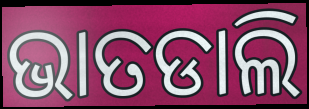
ଭାତଡାଲି